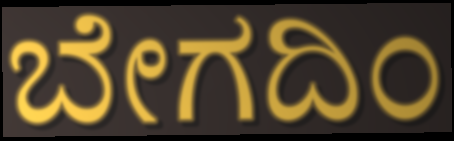
ಬೇಗದಿಂ